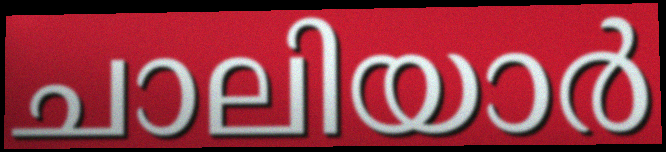
ചാലിയാർ